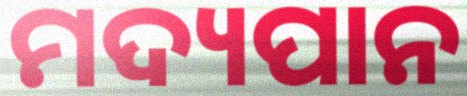
ମଦ୍ୟପାନ